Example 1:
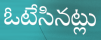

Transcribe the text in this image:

ఓటేసినట్లు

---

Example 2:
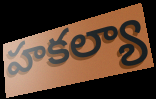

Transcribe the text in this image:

హకల్యా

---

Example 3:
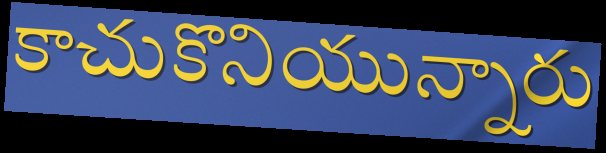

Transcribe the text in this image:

కాచుకొనియున్నారు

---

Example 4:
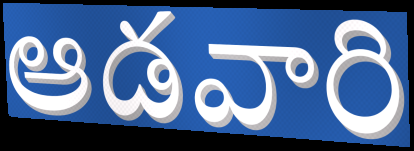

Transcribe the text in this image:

ఆడవారి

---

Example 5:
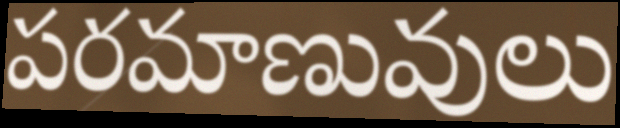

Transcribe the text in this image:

పరమాణువులు